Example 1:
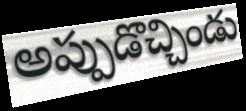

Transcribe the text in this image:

అప్పుడొచ్చిండు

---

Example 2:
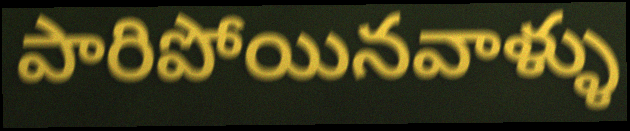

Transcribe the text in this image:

పారిపోయినవాళ్ళు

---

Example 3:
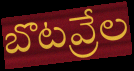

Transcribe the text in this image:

బొటవ్రేల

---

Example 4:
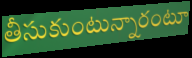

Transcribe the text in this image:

తీసుకుంటున్నారంటూ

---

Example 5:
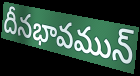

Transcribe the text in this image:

దీనభావమున్